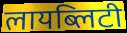
लायब्लिटी